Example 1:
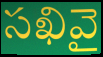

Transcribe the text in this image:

సఖివై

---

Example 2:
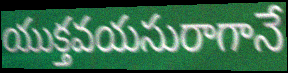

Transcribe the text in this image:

యుక్తవయసురాగానే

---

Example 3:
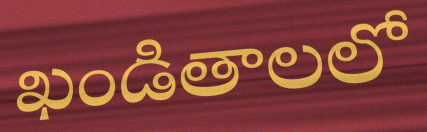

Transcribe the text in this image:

ఖండితాలలో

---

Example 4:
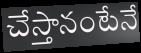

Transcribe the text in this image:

చేస్తానంటేనే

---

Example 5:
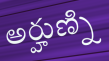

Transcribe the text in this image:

అర్హుణ్ని